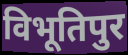
विभूतिपुर